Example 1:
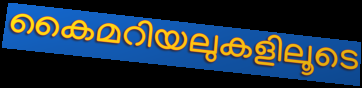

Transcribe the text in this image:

കൈമറിയലുകളിലൂടെ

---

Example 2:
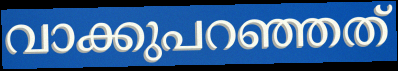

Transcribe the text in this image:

വാക്കുപറഞ്ഞത്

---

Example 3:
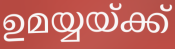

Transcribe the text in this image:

ഉമയ്യയ്ക്ക്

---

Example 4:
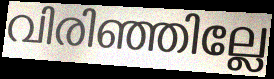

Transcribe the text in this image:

വിരിഞ്ഞില്ലേ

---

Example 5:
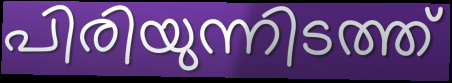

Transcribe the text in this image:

പിരിയുന്നിടത്ത്